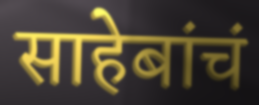
साहेबांचं